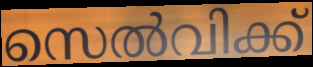
സെൽവിക്ക്